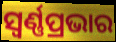
ସ୍ୱର୍ଣ୍ଣପ୍ରଭାର